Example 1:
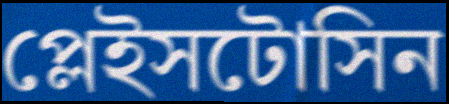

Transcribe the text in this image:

প্লেইসটোসিন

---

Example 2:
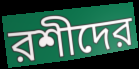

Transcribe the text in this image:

রশীদের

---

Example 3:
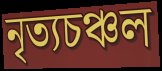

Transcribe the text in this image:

নৃত্যচঞ্চল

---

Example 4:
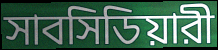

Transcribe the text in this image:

সাবসিডিয়ারী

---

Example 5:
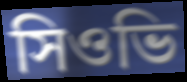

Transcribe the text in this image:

সিওভি